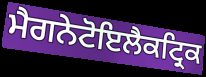
ਮੈਗਨੇਟੋਇਲੈਕਟ੍ਰਿਕ